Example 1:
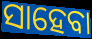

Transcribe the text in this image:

ସାହେବା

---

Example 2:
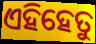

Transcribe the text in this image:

ଏହିହେତୁ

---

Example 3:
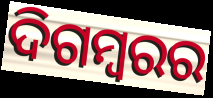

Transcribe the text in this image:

ଦିଗମ୍ୱରର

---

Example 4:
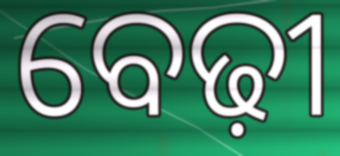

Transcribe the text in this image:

ବେଢ଼ୀ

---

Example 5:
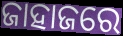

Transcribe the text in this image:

ଜାହାଜରେ